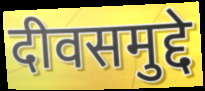
दीवसमुद्दे